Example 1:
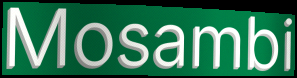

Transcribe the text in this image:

Mosambi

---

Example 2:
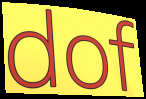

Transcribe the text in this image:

dof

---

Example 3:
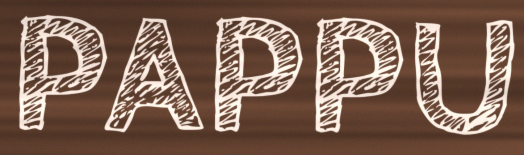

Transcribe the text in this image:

PAPPU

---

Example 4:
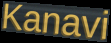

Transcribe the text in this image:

Kanavi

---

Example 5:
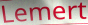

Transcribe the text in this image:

Lemert